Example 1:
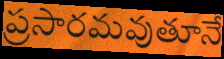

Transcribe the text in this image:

ప్రసారమవుతూనే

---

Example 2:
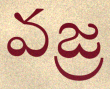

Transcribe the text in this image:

వజ్ర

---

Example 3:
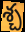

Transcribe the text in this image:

శ్చ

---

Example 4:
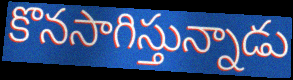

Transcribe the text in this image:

కొనసాగిస్తున్నాడు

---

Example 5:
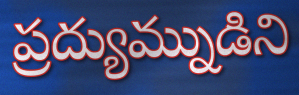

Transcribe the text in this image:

ప్రద్యుమ్నుడిని